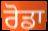
ਰੋਡਾ